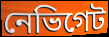
নেভিগেট